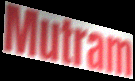
Mutram